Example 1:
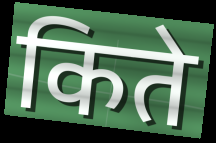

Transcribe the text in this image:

किते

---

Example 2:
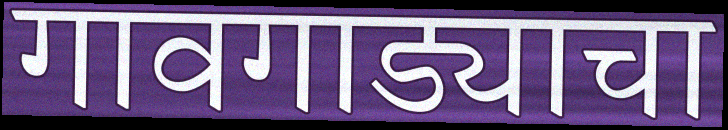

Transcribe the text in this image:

गावगाड्याचा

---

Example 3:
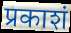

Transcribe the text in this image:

प्रकाशं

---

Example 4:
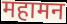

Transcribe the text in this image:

महामन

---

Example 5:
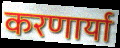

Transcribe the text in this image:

करणार्या